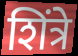
शिंत्रे